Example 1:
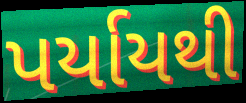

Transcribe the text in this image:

પર્યાયથી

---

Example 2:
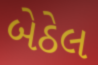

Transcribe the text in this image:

બેઠેલ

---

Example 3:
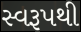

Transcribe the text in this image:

સ્વરૂપથી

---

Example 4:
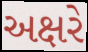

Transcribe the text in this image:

અક્ષરે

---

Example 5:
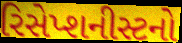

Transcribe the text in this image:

રિસેપ્શનીસ્ટનો